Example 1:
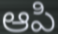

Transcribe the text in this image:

ఆపి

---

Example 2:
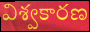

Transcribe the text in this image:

విశ్వకారణ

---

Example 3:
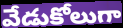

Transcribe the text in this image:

వేడుకోలుగా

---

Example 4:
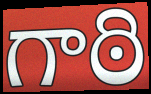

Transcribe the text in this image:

గాఠి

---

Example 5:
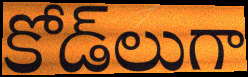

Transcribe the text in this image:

కోడ్‌లుగా